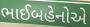
ભાઈબહેનોએ